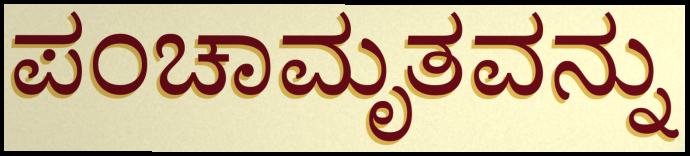
ಪಂಚಾಮೃತವನ್ನು